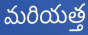
మరియత్త